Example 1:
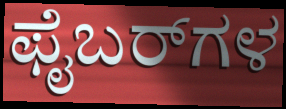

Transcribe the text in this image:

ಫೈಬರ್‌ಗಳ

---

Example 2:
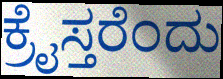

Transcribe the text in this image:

ಕ್ರೈಸ್ತರೆಂದು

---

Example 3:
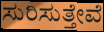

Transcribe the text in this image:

ಸುರಿಸುತ್ತೇವೆ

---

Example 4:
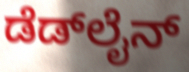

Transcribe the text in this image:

ಡೆಡ್‍ಲೈನ್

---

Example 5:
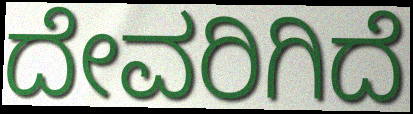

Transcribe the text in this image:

ದೇವರಿಗಿದೆ